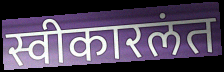
स्वीकारलंत